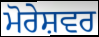
ਮੋਰੇਸ਼ਵਰ